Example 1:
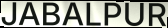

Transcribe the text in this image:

JABALPUR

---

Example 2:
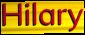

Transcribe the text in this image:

Hilary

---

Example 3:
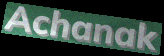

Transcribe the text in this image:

Achanak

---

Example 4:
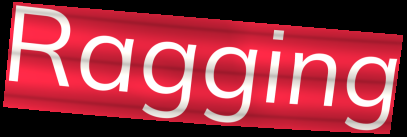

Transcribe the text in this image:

Ragging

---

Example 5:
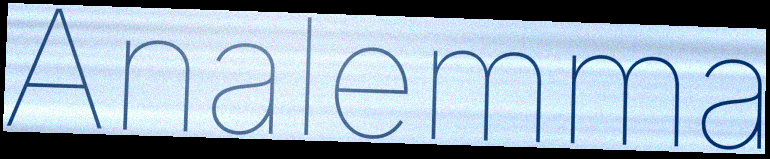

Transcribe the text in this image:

Analemma